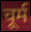
चूर्म